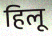
हिलू